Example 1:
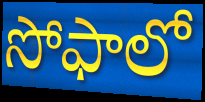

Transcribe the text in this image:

సోఫాలో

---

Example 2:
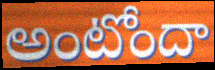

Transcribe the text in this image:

అంటోందా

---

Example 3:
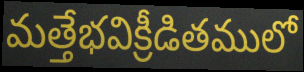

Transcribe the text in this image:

మత్తేభవిక్రీడితములో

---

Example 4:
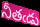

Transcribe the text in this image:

నీతఁడు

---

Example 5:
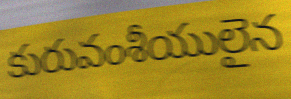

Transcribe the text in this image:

కురువంశీయులైన